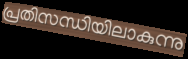
പ്രതിസന്ധിയിലാകുന്നു